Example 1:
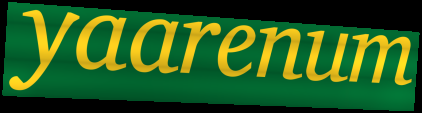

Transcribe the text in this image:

yaarenum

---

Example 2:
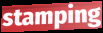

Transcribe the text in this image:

stamping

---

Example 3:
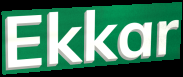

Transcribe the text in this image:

Ekkar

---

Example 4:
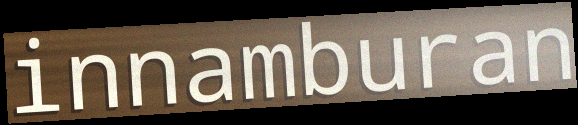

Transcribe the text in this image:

innamburan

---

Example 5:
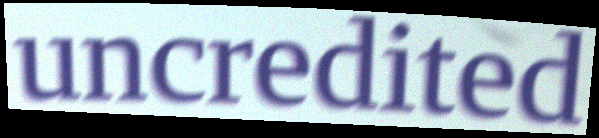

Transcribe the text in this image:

uncredited